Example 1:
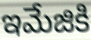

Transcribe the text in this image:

ఇమేజికి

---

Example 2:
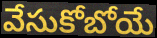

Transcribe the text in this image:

వేసుకోబోయే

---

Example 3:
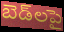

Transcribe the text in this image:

బెడ్‌లపై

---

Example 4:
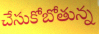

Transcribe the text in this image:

చేసుకోబోతున్న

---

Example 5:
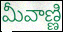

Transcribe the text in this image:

మీవాణ్ణి